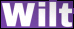
Wilt